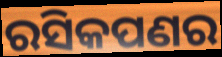
ରସିକପଣର